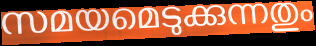
സമയമെടുക്കുന്നതും